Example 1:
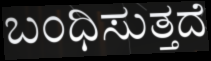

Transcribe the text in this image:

ಬಂಧಿಸುತ್ತದೆ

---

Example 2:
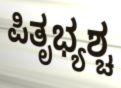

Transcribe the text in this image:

ಪಿತೃಭ್ಯಶ್ಚ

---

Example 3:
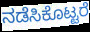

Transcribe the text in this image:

ನಡೆಸಿಕೊಟ್ಟರೆ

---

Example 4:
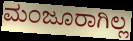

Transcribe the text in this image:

ಮಂಜೂರಾಗಿಲ್ಲ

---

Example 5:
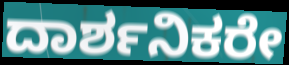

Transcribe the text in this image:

ದಾರ್ಶನಿಕರೇ